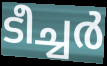
ടീച്ചർ